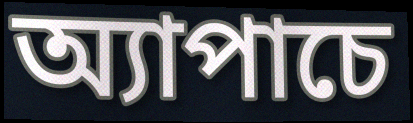
অ্যাপাচে